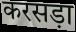
करसड़ा